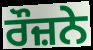
ਰੌਜ਼ਨੇ